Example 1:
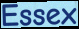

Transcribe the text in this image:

Essex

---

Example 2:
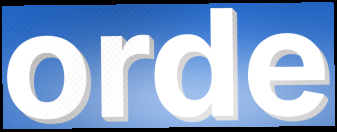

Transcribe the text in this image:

orde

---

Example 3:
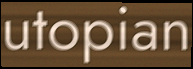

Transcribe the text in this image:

utopian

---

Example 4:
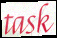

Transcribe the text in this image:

task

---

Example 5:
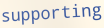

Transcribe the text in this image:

supporting